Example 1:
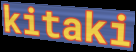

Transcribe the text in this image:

kitaki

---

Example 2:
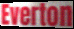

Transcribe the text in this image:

Everton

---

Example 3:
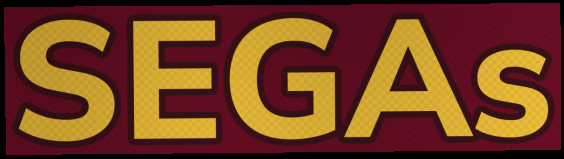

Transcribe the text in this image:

SEGAs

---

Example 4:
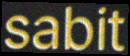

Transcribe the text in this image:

sabit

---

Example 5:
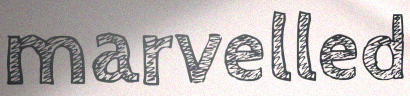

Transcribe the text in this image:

marvelled